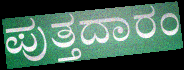
ಪುತ್ತದಾರಂ